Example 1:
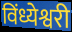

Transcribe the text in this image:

विंध्येश्वरी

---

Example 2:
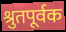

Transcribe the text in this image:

श्रुतपूर्वक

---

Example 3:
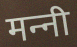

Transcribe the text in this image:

मन्नी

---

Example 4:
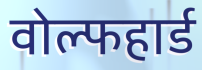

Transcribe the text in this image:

वोल्फहार्ड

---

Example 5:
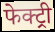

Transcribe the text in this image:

फेक्ट्री